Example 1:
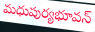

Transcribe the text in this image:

మధుపుర్యభూవన్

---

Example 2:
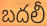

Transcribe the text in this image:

బదలీ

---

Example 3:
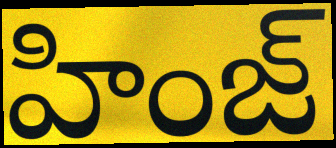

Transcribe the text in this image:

హింజ్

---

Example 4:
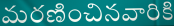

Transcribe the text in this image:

మరణించినవారికి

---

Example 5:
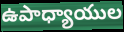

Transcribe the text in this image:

ఉపాధ్యాయుల